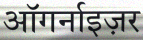
ऑगर्नाइज़र